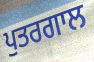
ਪੁਤਰਗਾਲ